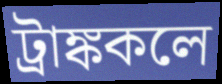
ট্রাঙ্ককলে